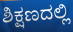
ಶಿಕ್ಷಣದಲ್ಲಿ